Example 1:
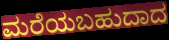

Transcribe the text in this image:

ಮರೆಯಬಹುದಾದ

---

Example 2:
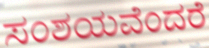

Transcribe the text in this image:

ಸಂಶಯವೆಂದರೆ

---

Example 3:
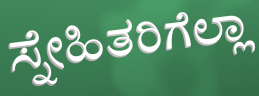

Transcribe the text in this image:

ಸ್ನೇಹಿತರಿಗೆಲ್ಲಾ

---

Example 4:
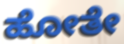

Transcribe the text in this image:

ಹೋತೇ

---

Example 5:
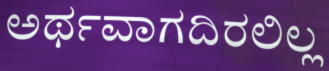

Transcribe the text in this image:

ಅರ್ಥವಾಗದಿರಲಿಲ್ಲ